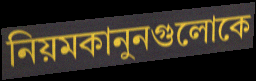
নিয়মকানুনগুলোকে